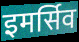
इमर्सिव